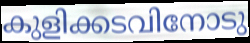
കുളിക്കടവിനോടു